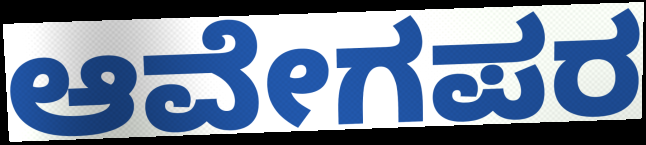
ಆವೇಗಪರ